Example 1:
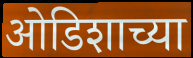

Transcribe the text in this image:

ओडिशाच्या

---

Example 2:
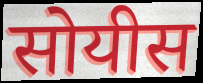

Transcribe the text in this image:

सोयीस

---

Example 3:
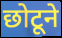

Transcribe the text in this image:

छोटूने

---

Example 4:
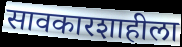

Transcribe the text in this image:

सावकारशाहीला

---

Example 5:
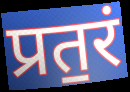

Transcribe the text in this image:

प्रत॒रं